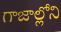
గాజాల్లోని